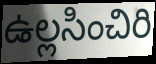
ఉల్లసించిరి